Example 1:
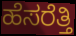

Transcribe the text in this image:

ಹೆಸರೆತ್ತಿ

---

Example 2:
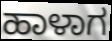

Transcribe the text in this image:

ಹಾಳಾಗ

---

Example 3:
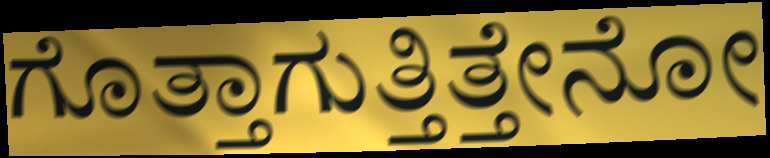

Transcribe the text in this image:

ಗೊತ್ತಾಗುತ್ತಿತ್ತೇನೋ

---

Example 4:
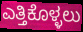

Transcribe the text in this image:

ಎತ್ತಿಕೊಳ್ಳಲು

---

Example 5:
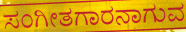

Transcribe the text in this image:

ಸಂಗೀತಗಾರನಾಗುವ